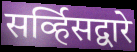
सर्व्हिसद्वारे